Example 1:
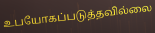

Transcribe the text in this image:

உபயோகப்படுத்தவில்லை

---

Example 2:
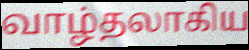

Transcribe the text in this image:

வாழ்தலாகிய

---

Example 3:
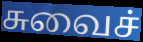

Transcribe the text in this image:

சுவைச்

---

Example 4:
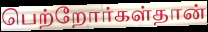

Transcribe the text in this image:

பெற்றோர்கள்தான்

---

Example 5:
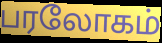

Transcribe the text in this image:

பரலோகம்